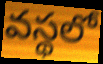
వస్థలో